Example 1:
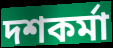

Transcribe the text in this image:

দশকর্মা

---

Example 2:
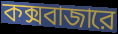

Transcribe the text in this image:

কক্সবাজারে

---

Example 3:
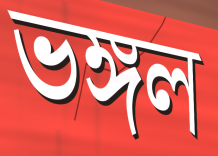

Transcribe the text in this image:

ভঙ্গল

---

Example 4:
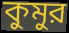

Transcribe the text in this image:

কুমুর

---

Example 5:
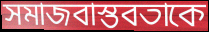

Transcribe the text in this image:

সমাজবাস্তবতাকে